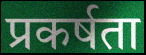
प्रकर्षता